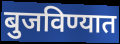
बुजविण्यात